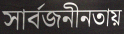
সার্বজনীনতায়